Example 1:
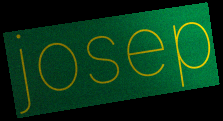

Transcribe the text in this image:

josep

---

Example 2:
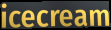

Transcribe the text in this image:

icecream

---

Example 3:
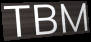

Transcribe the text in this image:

TBM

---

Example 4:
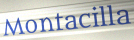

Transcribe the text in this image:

Montacilla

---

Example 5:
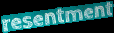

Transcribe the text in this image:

resentment